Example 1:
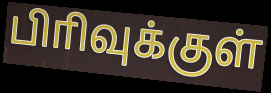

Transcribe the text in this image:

பிரிவுக்குள்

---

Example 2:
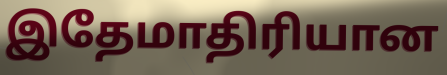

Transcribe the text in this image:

இதேமாதிரியான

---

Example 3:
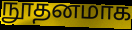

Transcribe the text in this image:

நூதனமாக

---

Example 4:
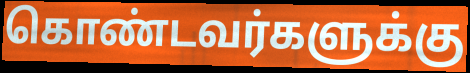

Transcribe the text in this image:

கொண்டவர்களுக்கு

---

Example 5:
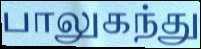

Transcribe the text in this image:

பாலுகந்து